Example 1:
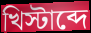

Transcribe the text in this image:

খিস্টাব্দে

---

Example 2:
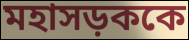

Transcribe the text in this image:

মহাসড়ককে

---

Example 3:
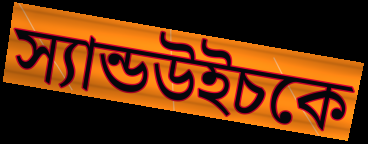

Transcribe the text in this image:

স্যান্ডউইচকে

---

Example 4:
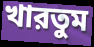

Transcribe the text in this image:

খারতুম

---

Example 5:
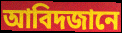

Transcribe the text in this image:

আবিদজানে